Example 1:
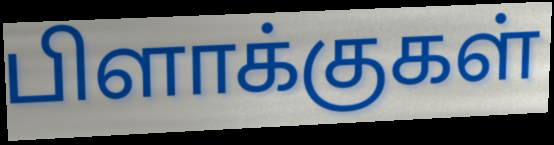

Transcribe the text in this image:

பிளாக்குகள்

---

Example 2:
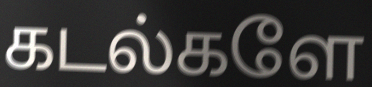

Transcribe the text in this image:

கடல்களே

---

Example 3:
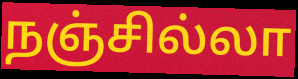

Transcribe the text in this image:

நஞ்சில்லா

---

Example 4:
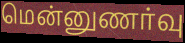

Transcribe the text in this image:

மென்னுணர்வு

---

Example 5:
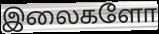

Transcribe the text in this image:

இலைகளோ